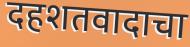
दहशतवादाचा